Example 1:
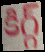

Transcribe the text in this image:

కిగ్గ్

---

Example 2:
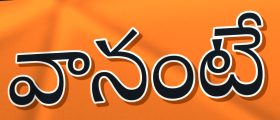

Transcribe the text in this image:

వానంటే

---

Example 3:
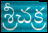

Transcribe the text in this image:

శ్రీచక్ర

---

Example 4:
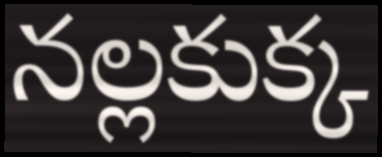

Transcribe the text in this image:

నల్లకుక్క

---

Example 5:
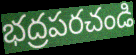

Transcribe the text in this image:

భద్రపరచండి